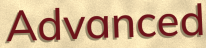
Advanced